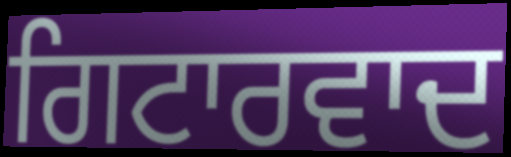
ਗਿਟਾਰਵਾਦ